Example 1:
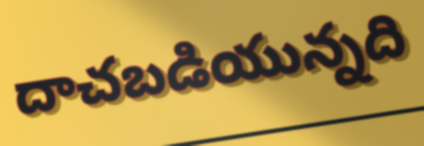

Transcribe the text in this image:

దాచబడియున్నది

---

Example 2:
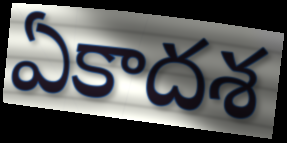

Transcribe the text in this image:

ఏకాదశ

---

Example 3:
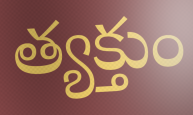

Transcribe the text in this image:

త్యక్తుం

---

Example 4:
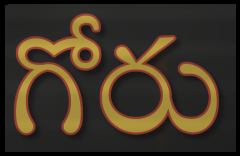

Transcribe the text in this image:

గోరు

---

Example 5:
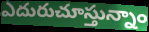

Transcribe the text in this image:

ఎదురుచూస్తున్నాం